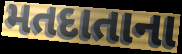
મતદાતાના